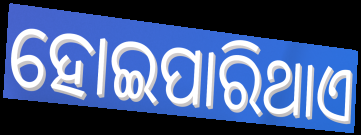
ହୋଇପାରିଥାଏ